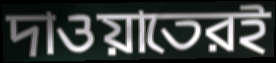
দাওয়াতেরই